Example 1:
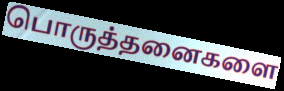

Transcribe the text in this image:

பொருத்தனைகளை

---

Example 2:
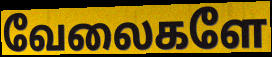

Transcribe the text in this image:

வேலைகளே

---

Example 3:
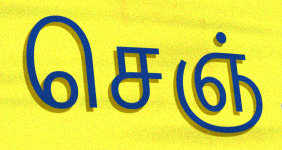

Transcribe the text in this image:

செஞ்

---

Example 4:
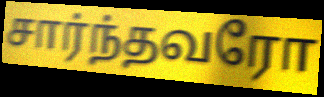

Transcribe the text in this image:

சார்ந்தவரோ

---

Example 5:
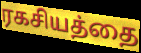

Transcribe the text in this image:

ரகசியத்தை